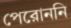
পেরোননি